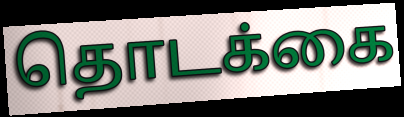
தொடக்கை